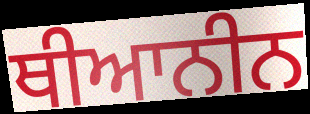
ਥੀਆਨੀਨ